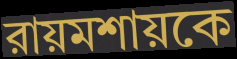
রায়মশায়কে